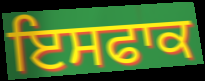
ਇਸਫਾਕ